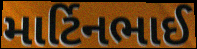
માર્ટિનભાઈ